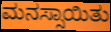
ಮನಸ್ಸಾಯಿತು